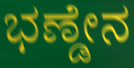
ಭಣ್ಡೇನ